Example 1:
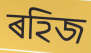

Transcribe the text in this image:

ৰহিজ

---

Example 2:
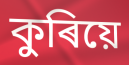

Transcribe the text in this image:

কুৰিয়ে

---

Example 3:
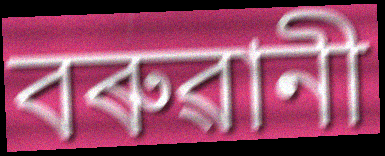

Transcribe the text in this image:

বৰুৱানী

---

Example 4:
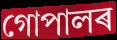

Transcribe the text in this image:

গোপালৰ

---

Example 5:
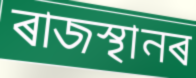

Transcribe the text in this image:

ৰাজস্থানৰ